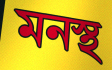
মনস্থ